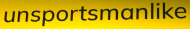
unsportsmanlike